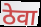
ठेवा